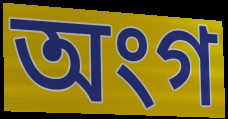
অংগ